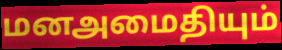
மனஅமைதியும்